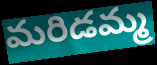
మరిడమ్మ